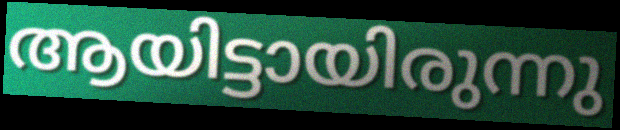
ആയിട്ടായിരുന്നു